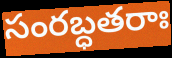
సంరబ్ధతరాః